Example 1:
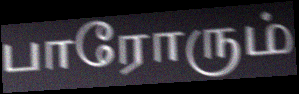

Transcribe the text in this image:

பாரோரும்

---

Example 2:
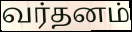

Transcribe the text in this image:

வர்தனம்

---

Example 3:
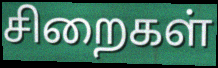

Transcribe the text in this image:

சிறைகள்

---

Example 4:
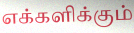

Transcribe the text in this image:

எக்களிக்கும்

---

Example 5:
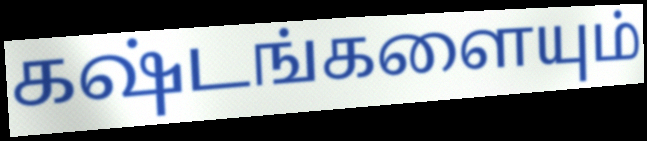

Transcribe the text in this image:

கஷ்டங்களையும்